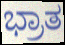
ಭ್ರಾತ